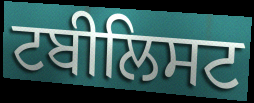
ਟਬੀਲਿਸਟ